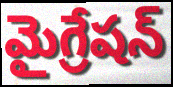
మైగ్రేషన్